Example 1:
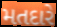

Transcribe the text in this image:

મતદારે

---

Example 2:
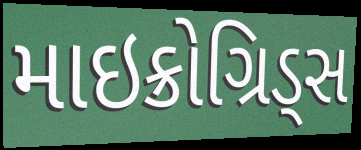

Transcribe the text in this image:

માઇક્રોગ્રિડ્સ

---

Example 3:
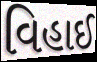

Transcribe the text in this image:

વિહાઈ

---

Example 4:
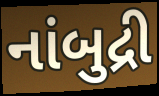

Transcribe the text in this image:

નાંબુદ્રી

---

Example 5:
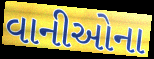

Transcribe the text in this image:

વાનીઓના